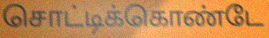
சொட்டிக்கொண்டே